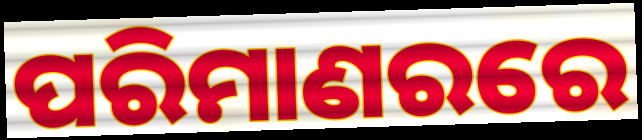
ପରିମାଣରରେ